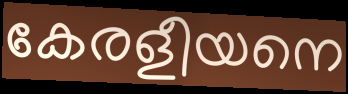
കേരളീയനെ